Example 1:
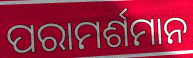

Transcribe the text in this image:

ପରାମର୍ଶମାନ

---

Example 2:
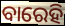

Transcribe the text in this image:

ବାରେହି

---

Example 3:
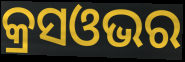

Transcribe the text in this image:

କ୍ରସଓଭର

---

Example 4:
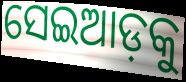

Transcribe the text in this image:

ସେଇଆଡ଼କୁ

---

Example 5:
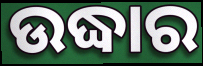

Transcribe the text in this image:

ଉଦ୍ଧାର